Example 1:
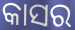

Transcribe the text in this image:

କାସର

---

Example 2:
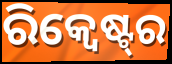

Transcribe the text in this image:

ରିକ୍ୱେଷ୍ଟ୍‌ର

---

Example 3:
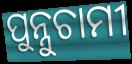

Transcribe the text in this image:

ପୁନ୍ନୁଚାମୀ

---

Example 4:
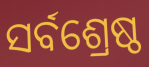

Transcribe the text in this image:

ସର୍ବଶ୍ରେଷ୍ଠ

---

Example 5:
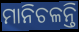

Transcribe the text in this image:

ମାନିଚଳନ୍ତି